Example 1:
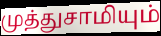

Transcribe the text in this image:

முத்துசாமியும்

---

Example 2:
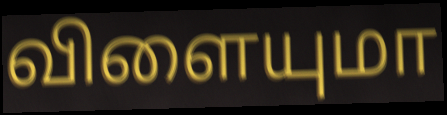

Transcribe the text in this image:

விளையுமா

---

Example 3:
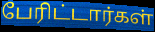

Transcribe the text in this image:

பேரிட்டார்கள்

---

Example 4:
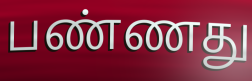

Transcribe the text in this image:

பண்ணது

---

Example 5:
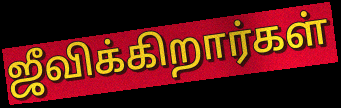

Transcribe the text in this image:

ஜீவிக்கிறார்கள்